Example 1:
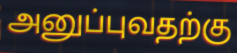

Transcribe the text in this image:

அனுப்புவதற்கு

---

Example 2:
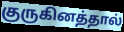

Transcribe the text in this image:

குருகினத்தால்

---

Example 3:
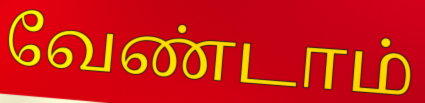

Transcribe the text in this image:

வேண்டாம்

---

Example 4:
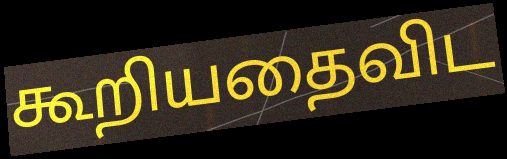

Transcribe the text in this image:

கூறியதைவிட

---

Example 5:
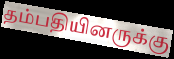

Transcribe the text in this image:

தம்பதியினருக்கு